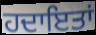
ਹਦਾਇਤਾਂ